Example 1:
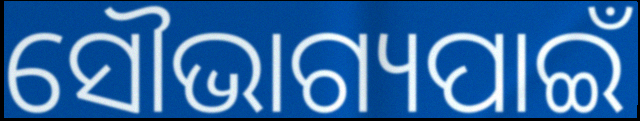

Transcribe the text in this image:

ସୌଭାଗ୍ୟପାଇଁ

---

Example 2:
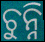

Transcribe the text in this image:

ଚୁନ୍ନି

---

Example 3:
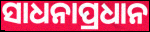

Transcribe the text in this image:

ସାଧନାପ୍ରଧାନ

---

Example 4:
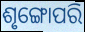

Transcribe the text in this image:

ଶୃଙ୍ଗୋପରି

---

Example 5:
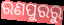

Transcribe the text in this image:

ରଣପୁରରୁ